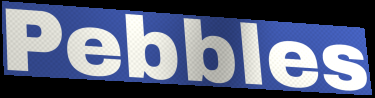
Pebbles